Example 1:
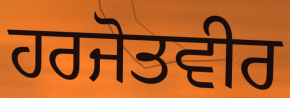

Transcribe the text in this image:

ਹਰਜੋਤਵੀਰ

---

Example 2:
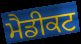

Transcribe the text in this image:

ਮੈਡੀਕਟ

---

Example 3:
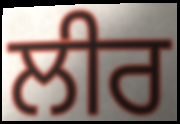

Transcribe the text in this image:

ਲੀਰ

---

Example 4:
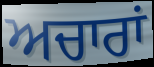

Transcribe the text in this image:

ਅਚਾਰਾਂ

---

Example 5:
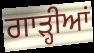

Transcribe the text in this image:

ਗਾੜ੍ਹੀਆਂ